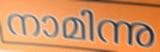
നാമിന്നു